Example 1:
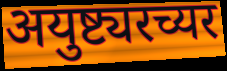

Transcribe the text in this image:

अयुष्ट्यरच्यर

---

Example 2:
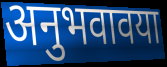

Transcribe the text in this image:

अनुभवावया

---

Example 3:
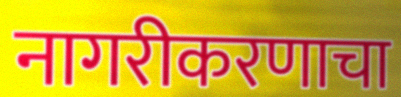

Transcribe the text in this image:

नागरीकरणाचा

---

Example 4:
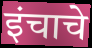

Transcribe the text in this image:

इंचाचे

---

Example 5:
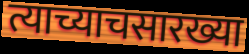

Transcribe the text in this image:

त्याच्याचसारख्या